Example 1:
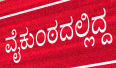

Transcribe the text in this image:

ವೈಕುಂಠದಲ್ಲಿದ್ದ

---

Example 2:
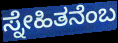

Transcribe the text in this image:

ಸ್ನೇಹಿತನೆಂಬ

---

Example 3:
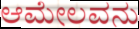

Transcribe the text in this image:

ಆಮೇಲವನು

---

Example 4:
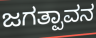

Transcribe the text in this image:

ಜಗತ್ಪಾವನ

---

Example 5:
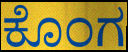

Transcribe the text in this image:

ಕೊಂಗ